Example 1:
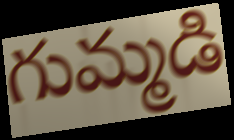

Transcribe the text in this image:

గుమ్మడి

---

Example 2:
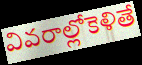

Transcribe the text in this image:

వివరాల్లోకెళితే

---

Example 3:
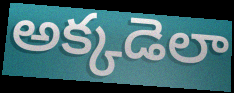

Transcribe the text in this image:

అక్కడెలా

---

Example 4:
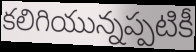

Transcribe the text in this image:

కలిగియున్నప్పటికీ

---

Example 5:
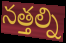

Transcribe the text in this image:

నత్తల్ని